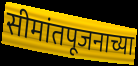
सीमांतपूजनाच्या